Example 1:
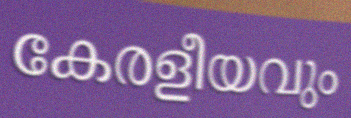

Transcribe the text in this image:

കേരളീയവും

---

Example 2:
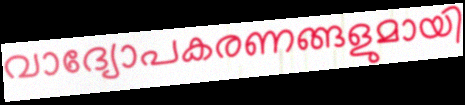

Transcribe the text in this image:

വാദ്യോപകരണങ്ങളുമായി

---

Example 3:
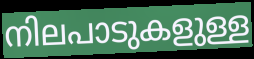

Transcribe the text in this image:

നിലപാടുകളുള്ള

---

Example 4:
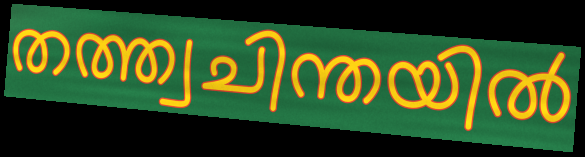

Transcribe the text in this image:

തത്ത്വചിന്തയിൽ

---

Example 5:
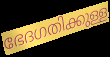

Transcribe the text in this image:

ഭേദഗതിക്കുള്ള